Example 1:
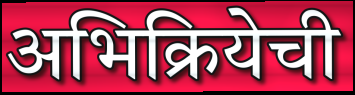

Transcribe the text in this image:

अभिक्रियेची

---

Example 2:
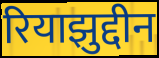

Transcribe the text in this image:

रियाझुद्दीन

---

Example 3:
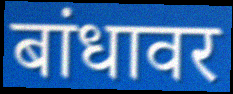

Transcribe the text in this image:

बांधावर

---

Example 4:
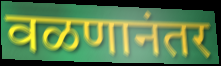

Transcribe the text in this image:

वळणानंतर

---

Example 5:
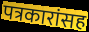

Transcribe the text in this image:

पत्रकारांसह